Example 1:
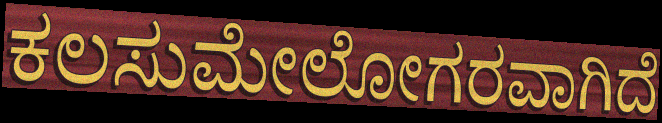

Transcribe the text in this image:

ಕಲಸುಮೇಲೋಗರವಾಗಿದೆ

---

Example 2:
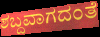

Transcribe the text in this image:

ಶಬ್ದವಾಗದಂತೆ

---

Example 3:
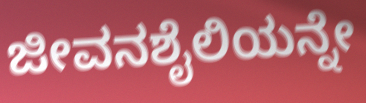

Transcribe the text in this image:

ಜೀವನಶೈಲಿಯನ್ನೇ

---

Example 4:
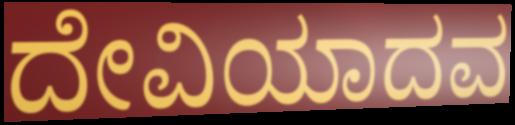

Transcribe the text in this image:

ದೇವಿಯಾದವ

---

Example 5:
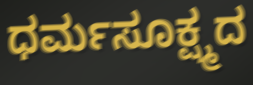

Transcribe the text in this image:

ಧರ್ಮಸೂಕ್ಷ್ಮದ